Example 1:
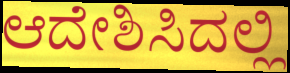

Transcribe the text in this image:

ಆದೇಶಿಸಿದಲ್ಲಿ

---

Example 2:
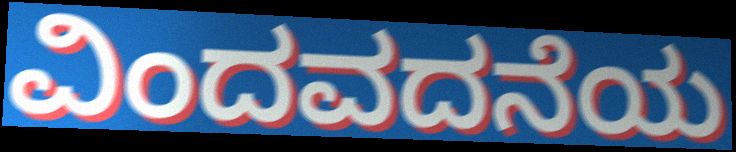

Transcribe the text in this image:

ವಿಂದವದನೆಯ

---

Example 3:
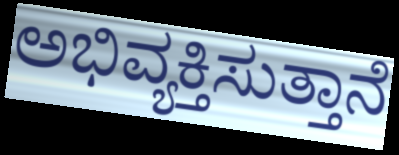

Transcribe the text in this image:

ಅಭಿವ್ಯಕ್ತಿಸುತ್ತಾನೆ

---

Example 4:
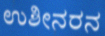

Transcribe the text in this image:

ಉಶೀನರನ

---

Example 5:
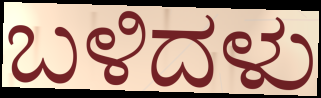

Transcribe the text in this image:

ಬಳಿದಳು